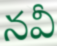
నవీ